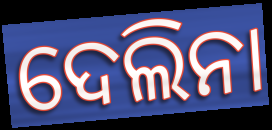
ଦେଲିନା